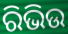
ରିଭିଉ